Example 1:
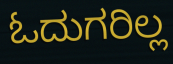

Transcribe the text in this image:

ಓದುಗರಿಲ್ಲ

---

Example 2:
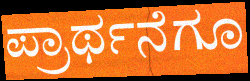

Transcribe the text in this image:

ಪ್ರಾರ್ಥನೆಗೂ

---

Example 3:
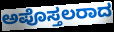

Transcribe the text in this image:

ಅಪೊಸ್ತಲರಾದ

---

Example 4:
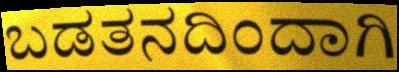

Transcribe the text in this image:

ಬಡತನದಿಂದಾಗಿ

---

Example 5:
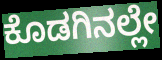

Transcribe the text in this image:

ಕೊಡಗಿನಲ್ಲೇ